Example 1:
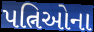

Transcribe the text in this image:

પત્નિઓના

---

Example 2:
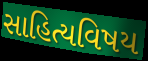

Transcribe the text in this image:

સાહિત્યવિષય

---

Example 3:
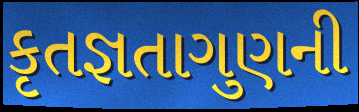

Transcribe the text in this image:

કૃતજ્ઞતાગુણની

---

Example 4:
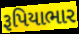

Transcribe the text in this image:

રૂપિયાભાર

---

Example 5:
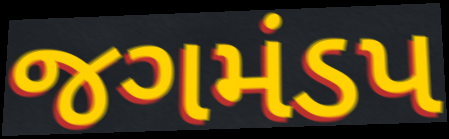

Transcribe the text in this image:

જગમંડપ